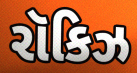
રૉકિઝ